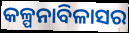
କଳ୍ପନାବିଳାସର